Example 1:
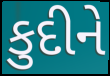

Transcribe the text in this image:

કુદીને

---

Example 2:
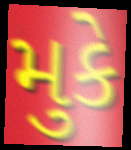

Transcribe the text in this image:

મુકે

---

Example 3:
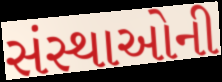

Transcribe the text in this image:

સંસ્થાઓની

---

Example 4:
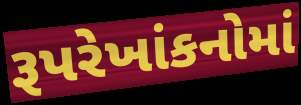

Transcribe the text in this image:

રૂપરેખાંકનોમાં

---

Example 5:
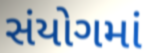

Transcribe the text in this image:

સંયોગમાં